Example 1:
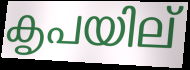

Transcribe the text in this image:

കൃപയില്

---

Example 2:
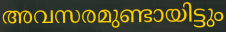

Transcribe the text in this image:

അവസരമുണ്ടായിട്ടും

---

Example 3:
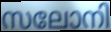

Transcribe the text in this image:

സലോനി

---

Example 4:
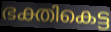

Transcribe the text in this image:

ഭക്തികെട്ട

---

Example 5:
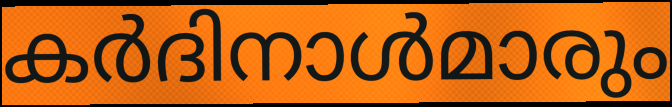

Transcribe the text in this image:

കർദിനാൾമാരും